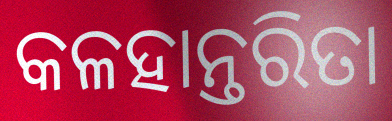
କଳହାନ୍ତରିତା